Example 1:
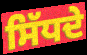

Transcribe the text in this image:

ਸਿੱਧਦੇ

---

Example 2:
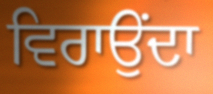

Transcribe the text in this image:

ਵਿਰਾਉਂਦਾ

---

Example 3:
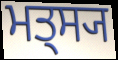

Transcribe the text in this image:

ਮਤ੍ਸ੍ਯ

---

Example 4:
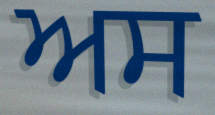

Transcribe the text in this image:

ਅਸ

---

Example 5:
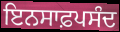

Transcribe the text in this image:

ਇਨਸਾਫ਼ਪਸੰਦ